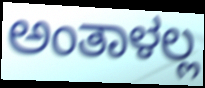
ಅಂತಾಳಲ್ಲ